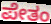
ಪೇತಂ